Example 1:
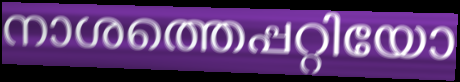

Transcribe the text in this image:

നാശത്തെപ്പറ്റിയോ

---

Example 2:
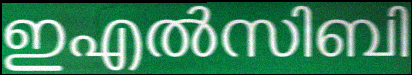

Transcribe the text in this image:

ഇഎൽസിബി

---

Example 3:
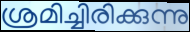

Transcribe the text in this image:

ശ്രമിച്ചിരിക്കുന്നു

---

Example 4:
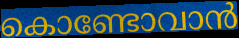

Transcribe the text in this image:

കൊണ്ടോവാൻ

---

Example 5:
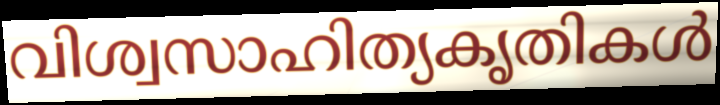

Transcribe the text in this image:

വിശ്വസാഹിത്യകൃതികൾ